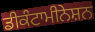
ਡੀਕੰਟਾਮੀਨੇਸ਼ਨ